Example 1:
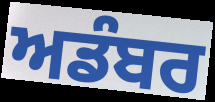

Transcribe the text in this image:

ਅਡੰਬਰ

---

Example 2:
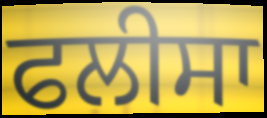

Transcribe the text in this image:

ਫਲੀਸਾ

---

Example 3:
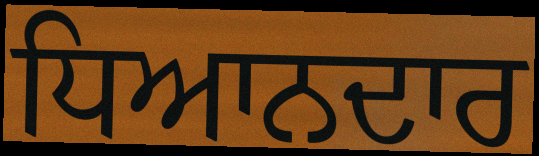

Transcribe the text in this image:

ਧਿਆਨਦਾਰ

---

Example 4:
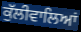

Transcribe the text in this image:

ਕੁੱਲੀਵਾਲਿਆਂ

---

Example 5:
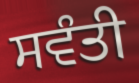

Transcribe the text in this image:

ਸਵੰਤੀ